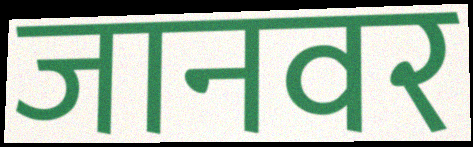
जानवर